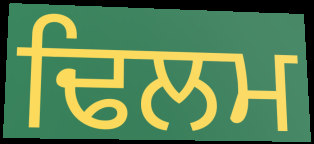
ਢਿਲਮ